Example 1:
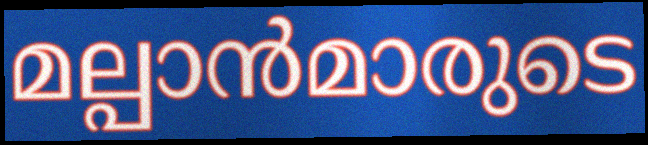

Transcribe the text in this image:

മല്പാൻമാരുടെ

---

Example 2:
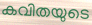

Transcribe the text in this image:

കവിതയുടെ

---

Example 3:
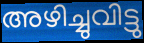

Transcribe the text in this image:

അഴിച്ചുവിട്ടു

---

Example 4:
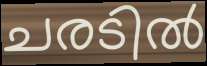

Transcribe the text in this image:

ചരടിൽ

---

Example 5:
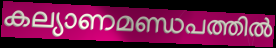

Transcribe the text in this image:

കല്യാണമണ്ഡപത്തിൽ